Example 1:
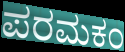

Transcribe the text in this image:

ಪರಮಕಂ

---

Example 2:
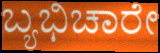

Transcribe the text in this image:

ಬ್ಯಭಿಚಾರೇ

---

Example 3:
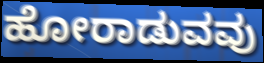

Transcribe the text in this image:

ಹೋರಾಡುವವು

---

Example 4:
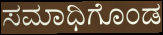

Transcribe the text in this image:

ಸಮಾಧಿಗೊಂಡ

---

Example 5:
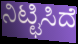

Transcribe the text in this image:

ನಿಟ್ಟಿಸಿದೆ